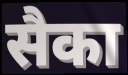
सैका